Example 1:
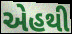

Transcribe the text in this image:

એહથી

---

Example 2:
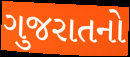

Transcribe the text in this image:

ગુજરાતનો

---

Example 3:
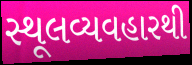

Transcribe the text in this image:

સ્થૂલવ્યવહારથી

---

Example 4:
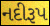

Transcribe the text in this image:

નદીરૂપ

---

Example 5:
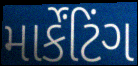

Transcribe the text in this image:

માર્કેંટિંગ